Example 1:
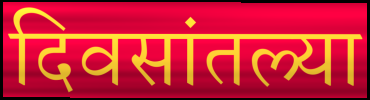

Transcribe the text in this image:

दिवसांतल्या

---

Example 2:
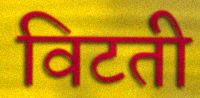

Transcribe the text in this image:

विटती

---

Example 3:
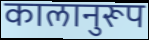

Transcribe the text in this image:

कालानुरूप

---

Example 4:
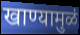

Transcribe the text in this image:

खाण्यामुळं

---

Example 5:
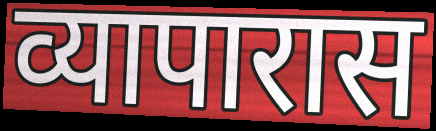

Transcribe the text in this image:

व्यापारास